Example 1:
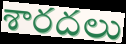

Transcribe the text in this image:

శారదలు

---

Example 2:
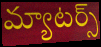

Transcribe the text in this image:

మ్యాటర్స్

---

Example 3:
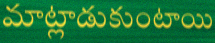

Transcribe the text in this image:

మాట్లాడుకుంటాయి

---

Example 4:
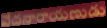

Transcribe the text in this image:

వేదనారాయణుడు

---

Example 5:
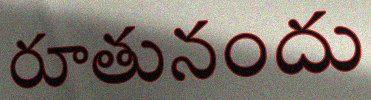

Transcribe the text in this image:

రూతునందు